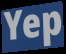
Yep